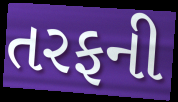
તરફની